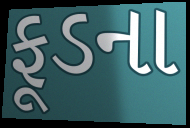
ફૂડના